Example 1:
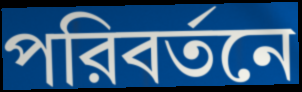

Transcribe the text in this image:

পরিবর্তনে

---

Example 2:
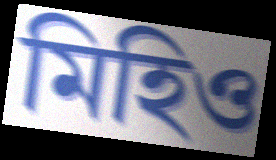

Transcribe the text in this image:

মিহিও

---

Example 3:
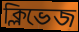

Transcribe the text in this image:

ক্লিভেজ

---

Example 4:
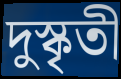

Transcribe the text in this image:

দুস্কৃতী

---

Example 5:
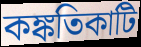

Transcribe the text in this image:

কঙ্কতিকাটি